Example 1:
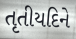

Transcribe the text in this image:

તૃતીયદિને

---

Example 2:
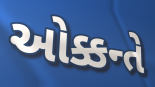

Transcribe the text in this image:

ઓક્કન્તે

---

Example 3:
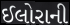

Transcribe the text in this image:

ઈલોરાની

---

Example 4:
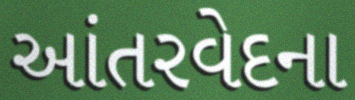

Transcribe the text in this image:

આંતરવેદના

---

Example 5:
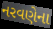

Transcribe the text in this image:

નરવણેના